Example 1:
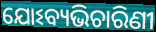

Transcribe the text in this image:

ଯୋଽବ୍ୟଭିଚାରିଣୀ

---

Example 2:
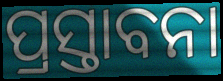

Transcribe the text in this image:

ପ୍ରସ୍ତାବନା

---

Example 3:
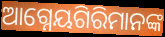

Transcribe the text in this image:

ଆଗ୍ନେୟଗିରିମାନଙ୍କ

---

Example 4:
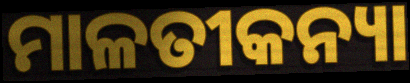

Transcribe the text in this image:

ମାଳତୀକନ୍ୟା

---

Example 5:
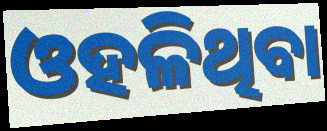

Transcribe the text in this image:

ଓହଳିଥିବା